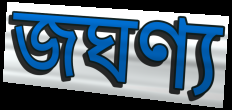
জঘণ্য